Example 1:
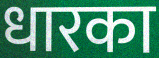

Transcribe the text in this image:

धारका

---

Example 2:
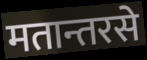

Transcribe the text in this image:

मतान्तरसे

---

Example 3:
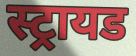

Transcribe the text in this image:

स्ट्रायड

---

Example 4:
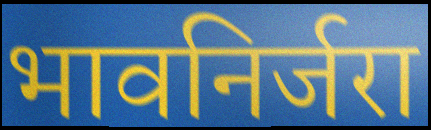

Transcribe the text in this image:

भावनिर्जरा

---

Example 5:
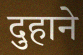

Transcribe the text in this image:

दुहाने